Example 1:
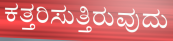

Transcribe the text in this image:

ಕತ್ತರಿಸುತ್ತಿರುವುದು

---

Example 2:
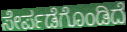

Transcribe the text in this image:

ಸೇರ್ಪಡೆಗೊಂಡಿದೆ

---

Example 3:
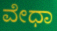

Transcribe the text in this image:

ವೇಧಾ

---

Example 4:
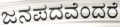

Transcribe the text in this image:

ಜನಪದವೆಂದರೆ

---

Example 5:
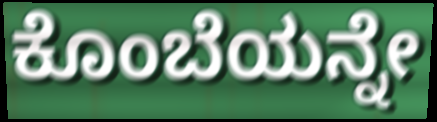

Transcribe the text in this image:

ಕೊಂಬೆಯನ್ನೇ